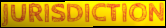
JURISDICTION